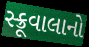
સ્ક્રૂવાલાનો